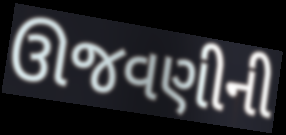
ઊજવણીની